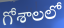
గోశాలలో